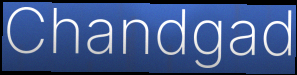
Chandgad